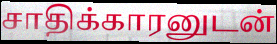
சாதிக்காரனுடன்